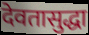
देवतासुद्धा